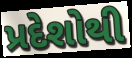
પ્રદેશોથી